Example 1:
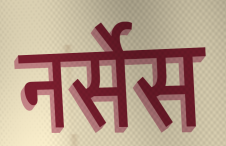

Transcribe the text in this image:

नर्सेस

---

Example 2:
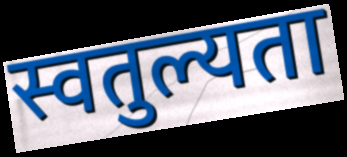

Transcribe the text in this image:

स्वतुल्यता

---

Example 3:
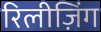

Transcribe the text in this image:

रिलीज़िंग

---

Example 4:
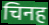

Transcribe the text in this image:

चिनह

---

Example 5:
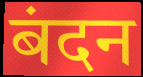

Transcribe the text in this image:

बंदन